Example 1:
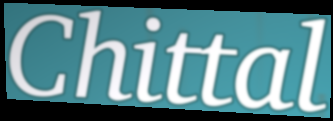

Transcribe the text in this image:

Chittal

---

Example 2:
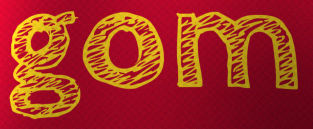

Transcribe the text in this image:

gom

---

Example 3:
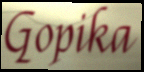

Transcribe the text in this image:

Gopika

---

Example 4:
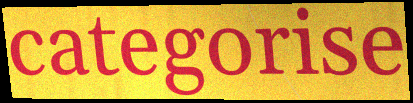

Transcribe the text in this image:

categorise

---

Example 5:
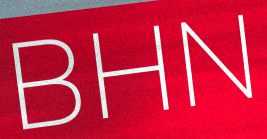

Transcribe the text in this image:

BHN